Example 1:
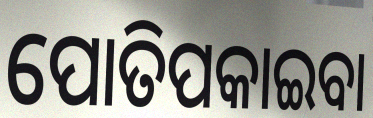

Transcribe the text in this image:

ପୋତିପକାଇବା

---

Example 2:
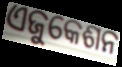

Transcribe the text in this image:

ଏଜୁକେଶନ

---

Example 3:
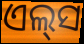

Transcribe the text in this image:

ଏଲ୍‌ସ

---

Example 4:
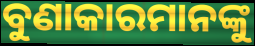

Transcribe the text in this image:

ବୁଣାକାରମାନଙ୍କୁ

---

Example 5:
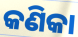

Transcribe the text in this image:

କଣିକା